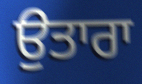
ਉਤਾਰਾ